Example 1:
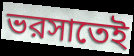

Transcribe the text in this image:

ভরসাতেই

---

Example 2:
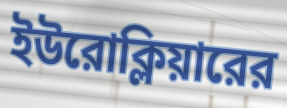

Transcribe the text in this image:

ইউরোক্লিয়ারের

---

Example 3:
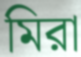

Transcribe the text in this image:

মিরা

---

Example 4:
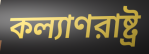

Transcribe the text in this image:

কল্যাণরাষ্ট্র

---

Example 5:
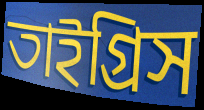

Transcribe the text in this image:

তাইগ্রিস